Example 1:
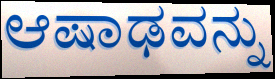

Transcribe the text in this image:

ಆಷಾಢವನ್ನು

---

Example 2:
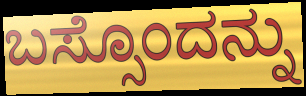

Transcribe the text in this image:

ಬಸ್ಸೊಂದನ್ನು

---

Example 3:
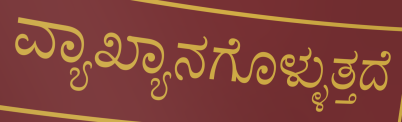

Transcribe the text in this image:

ವ್ಯಾಖ್ಯಾನಗೊಳ್ಳುತ್ತದೆ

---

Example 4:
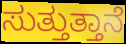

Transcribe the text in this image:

ಸುತ್ತುತ್ತಾನೆ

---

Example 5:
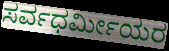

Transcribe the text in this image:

ಸರ್ವಧರ್ಮೀಯರ